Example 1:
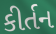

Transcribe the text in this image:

કીર્તન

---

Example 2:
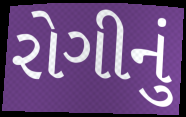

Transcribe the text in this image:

રોગીનું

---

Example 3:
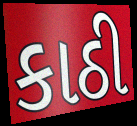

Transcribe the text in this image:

કાઠી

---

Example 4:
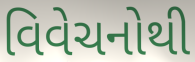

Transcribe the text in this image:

વિવેચનોથી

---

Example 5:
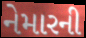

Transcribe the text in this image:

નેમારની